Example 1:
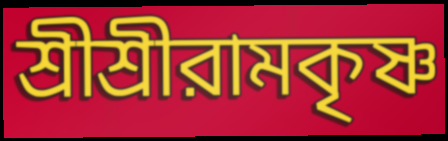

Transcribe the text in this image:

শ্রীশ্রীরামকৃষ্ণ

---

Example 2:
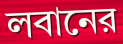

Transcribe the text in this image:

লবানের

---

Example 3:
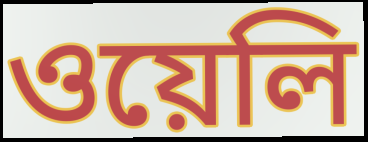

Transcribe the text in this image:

ওয়েলি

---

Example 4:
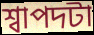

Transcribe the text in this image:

শ্বাপদটা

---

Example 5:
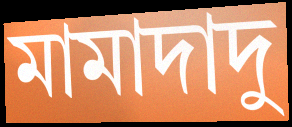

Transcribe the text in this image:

মামাদাদু